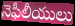
నెఫీలీయులు